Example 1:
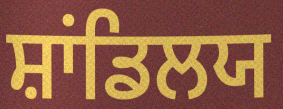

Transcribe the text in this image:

ਸ਼ਾਂਡਿਲਯ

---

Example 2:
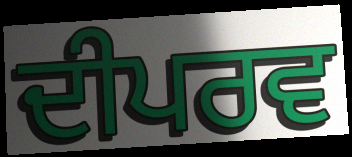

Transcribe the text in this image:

ਦੀਪਰਵ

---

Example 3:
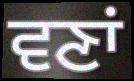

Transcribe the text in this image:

ਵਣਾਂ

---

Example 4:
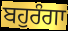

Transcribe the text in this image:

ਬਹੁਰੰਗਾ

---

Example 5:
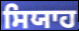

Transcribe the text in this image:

ਸਿਯਾਹ